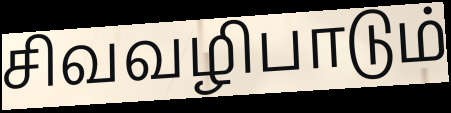
சிவவழிபாடும்